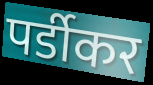
पर्डीकर